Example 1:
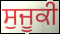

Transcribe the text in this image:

ਸੁਜੂਕੀ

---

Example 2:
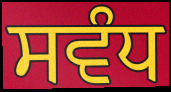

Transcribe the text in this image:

ਸਵੰਧ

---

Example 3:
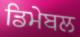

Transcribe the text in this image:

ਡਿਮੇਬਲ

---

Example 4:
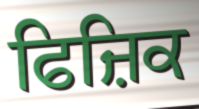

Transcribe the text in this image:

ਫਿਜ਼ਿਕ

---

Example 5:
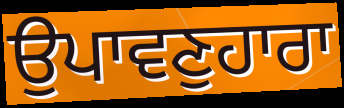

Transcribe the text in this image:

ਉਪਾਵਣੁਹਾਰਾ